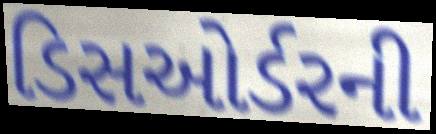
ડિસઓર્ડરની